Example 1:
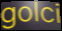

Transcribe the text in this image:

golci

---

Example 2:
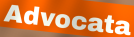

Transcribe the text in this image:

Advocata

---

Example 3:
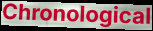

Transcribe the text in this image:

Chronological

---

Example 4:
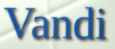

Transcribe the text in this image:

Vandi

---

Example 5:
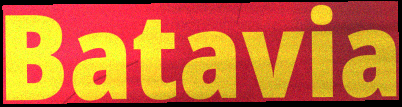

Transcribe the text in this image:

Batavia